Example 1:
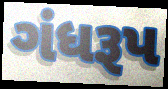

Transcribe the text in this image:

ગંધરૂપ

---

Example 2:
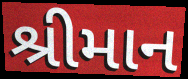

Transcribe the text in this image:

શ્રીમાન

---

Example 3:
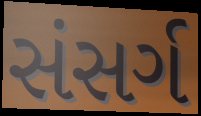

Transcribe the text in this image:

સંસર્ગ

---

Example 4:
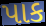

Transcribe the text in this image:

પાક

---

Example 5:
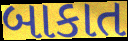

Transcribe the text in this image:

બાકાત